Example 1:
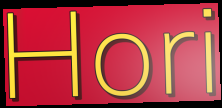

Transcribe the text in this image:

Hori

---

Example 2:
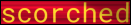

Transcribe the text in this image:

scorched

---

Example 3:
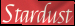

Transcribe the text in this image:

Stardust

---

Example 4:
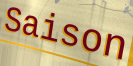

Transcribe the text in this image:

Saison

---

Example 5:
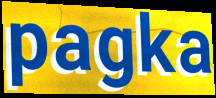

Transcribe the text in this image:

pagka